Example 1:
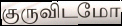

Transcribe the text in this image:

குருவிடமோ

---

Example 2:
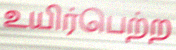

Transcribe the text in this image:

உயிர்பெற்ற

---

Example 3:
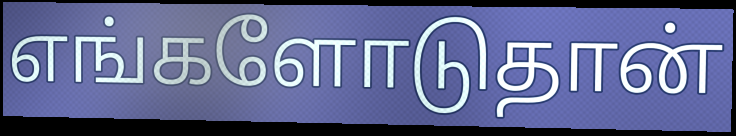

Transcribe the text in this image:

எங்களோடுதான்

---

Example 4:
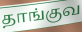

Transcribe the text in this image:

தாங்குவ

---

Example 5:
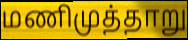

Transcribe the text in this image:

மணிமுத்தாறு